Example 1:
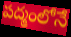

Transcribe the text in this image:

పద్మంలోనే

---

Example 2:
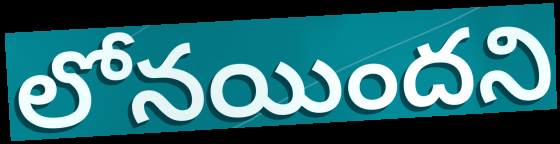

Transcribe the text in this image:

లోనయిందని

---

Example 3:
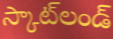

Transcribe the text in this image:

స్కాట్‌లండ్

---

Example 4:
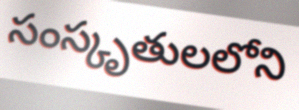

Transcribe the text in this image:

సంస్కృతులలోని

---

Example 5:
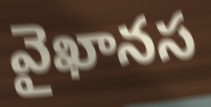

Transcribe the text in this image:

వైఖానస